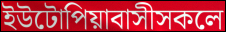
ইউটোপিয়াবাসীসকলে